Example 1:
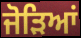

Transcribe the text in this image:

ਜੋੜਿਆਂ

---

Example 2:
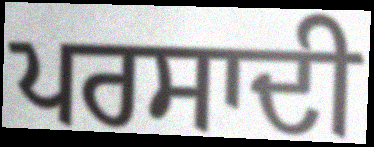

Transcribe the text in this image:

ਪਰਸਾਦੀ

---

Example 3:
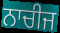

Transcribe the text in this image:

ਨਾਚੀਜ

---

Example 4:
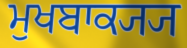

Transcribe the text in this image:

ਮੁਖਬਾਕ੍ਯ੍ਯ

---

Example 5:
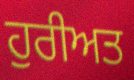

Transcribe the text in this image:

ਹੁਰੀਅਤ